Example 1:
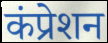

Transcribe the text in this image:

कंप्रेशन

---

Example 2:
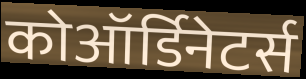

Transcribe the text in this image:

कोऑर्डिनेटर्स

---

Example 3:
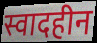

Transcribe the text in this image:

स्वादहीन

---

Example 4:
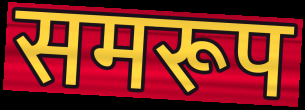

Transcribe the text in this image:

समरूप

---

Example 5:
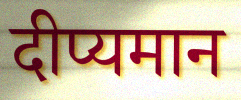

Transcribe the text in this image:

दीप्यमान